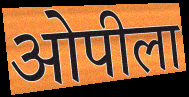
ओपीला